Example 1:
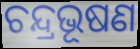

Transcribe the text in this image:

ଚନ୍ଦ୍ରଭୂଷଣ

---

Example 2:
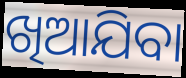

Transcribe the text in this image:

ଖିଆଯିବା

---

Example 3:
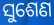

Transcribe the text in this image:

ସୁଶେଣ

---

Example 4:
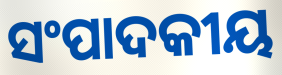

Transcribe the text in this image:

ସଂପାଦକୀୟ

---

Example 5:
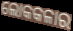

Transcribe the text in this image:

ଲୋକକଳାର